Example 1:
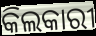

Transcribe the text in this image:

କିଲକାରୀ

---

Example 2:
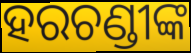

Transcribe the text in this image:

ହରଚଣ୍ଡୀଙ୍କ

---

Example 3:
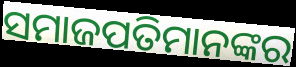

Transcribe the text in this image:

ସମାଜପତିମାନଙ୍କର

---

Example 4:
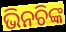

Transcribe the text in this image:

ଭିନଚିଙ୍କ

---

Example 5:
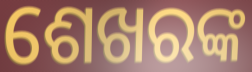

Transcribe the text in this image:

ଶେଖରଙ୍କ